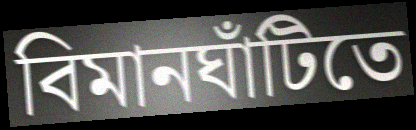
বিমানঘাঁটিতে